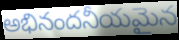
అభినందనీయమైన